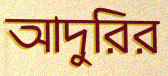
আদুরির